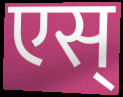
एस्